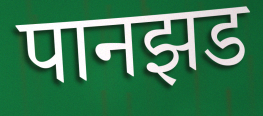
पानझड